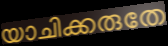
യാചിക്കരുതേ